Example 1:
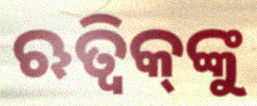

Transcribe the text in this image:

ଋତ୍ୱିକ୍‌ଙ୍କୁ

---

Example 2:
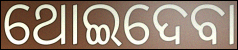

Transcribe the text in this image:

ଥୋଇଦେବା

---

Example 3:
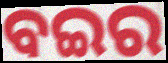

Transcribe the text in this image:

ବଇର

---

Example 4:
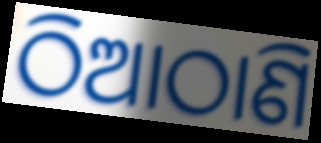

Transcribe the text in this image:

ଠିଆଠାଣି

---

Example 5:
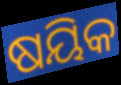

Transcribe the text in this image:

ଷୟିକ